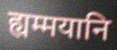
ह्यम्मयानि